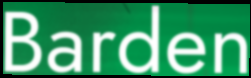
Barden